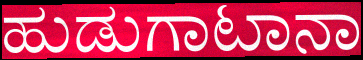
ಹುಡುಗಾಟಾನಾ